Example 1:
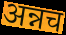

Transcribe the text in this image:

अन्नच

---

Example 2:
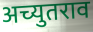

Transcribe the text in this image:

अच्युतराव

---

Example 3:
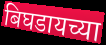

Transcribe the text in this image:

बिघडायच्या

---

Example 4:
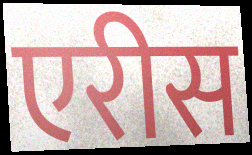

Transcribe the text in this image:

एरीस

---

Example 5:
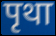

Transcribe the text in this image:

पृथा